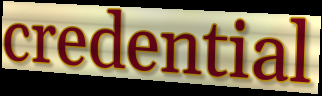
credential